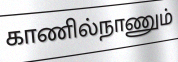
காணில்நாணும்